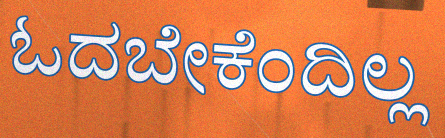
ಓದಬೇಕೆಂದಿಲ್ಲ